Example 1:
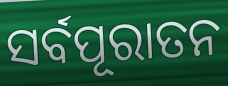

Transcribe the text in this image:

ସର୍ବପୂରାତନ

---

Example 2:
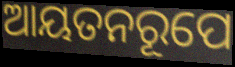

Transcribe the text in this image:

ଆୟତନରୂପେ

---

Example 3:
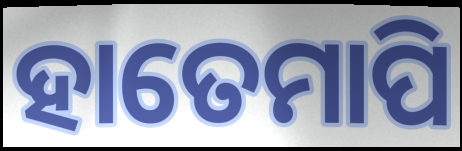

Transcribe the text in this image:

ହାତେମାପି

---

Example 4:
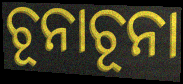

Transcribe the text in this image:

ଚୂନାଚୂନା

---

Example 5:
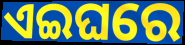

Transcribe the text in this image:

ଏଇଘରେ